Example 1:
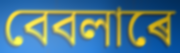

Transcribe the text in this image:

বেবলাৰে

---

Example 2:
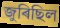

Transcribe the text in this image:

জুৰিছিল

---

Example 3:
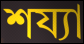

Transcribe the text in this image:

শয্যা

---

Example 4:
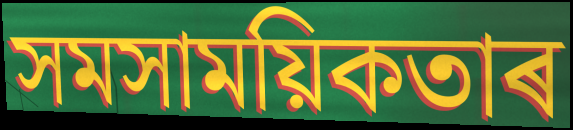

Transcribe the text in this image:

সমসাময়িকতাৰ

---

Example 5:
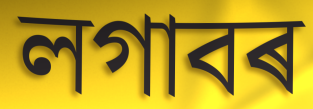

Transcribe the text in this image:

লগাবৰ